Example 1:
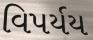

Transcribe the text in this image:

વિપર્યય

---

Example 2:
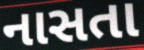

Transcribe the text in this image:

નાસતા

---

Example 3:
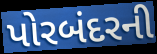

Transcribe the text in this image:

પોરબંદરની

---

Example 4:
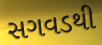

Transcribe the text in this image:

સગવડથી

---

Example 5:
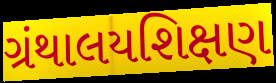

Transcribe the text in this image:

ગ્રંથાલયશિક્ષણ